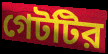
গেটটির